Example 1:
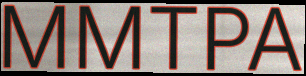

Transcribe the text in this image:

MMTPA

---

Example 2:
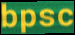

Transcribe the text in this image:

bpsc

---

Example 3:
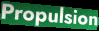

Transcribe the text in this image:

Propulsion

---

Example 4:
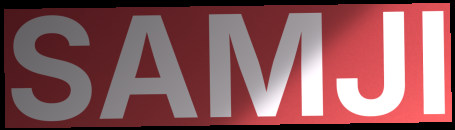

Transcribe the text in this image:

SAMJI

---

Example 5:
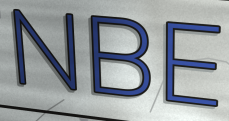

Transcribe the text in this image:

NBE